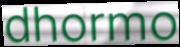
dhormo